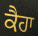
ਕੈਹਾ